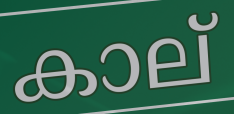
കാല്